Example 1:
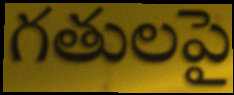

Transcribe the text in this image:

గతులపై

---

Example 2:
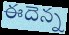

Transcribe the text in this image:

ఈదెన్న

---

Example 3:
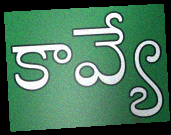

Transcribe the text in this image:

కావ్యే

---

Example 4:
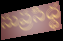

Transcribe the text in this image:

సుప్రసిధ్ధ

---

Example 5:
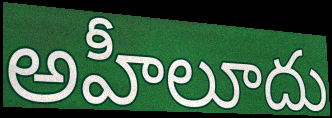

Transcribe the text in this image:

అహీలూదు